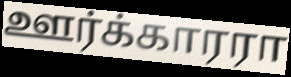
ஊர்க்காரரா